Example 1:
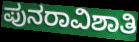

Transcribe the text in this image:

ಪುನರಾವಿಶಾತಿ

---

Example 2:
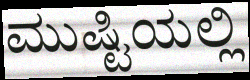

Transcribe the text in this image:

ಮುಷ್ಟಿಯಲ್ಲಿ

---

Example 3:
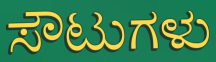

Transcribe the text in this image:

ಸೌಟುಗಳು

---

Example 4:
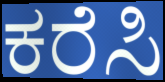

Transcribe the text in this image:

ಕರೆಸಿ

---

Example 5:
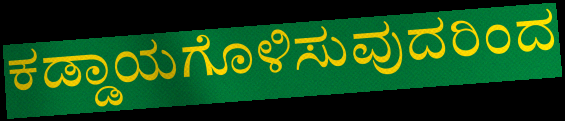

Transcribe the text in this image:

ಕಡ್ಡಾಯಗೊಳಿಸುವುದರಿಂದ